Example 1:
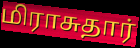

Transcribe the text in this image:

மிராசுதார்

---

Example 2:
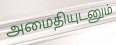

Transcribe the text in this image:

அமைதியுடனும்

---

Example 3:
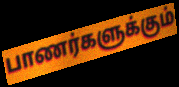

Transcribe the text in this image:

பாணர்களுக்கும்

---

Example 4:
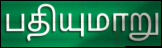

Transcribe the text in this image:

பதியுமாறு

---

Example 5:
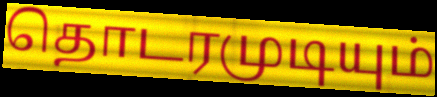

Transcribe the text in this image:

தொடரமுடியும்